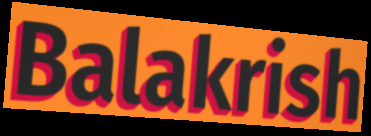
Balakrish